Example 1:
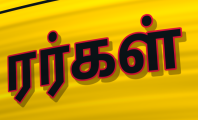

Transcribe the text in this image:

ரர்கள்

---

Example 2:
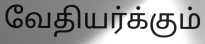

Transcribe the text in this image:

வேதியர்க்கும்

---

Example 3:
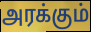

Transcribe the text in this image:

அரக்கும்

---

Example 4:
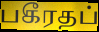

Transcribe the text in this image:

பகீரதப்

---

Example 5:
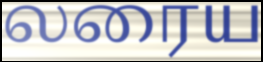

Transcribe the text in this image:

லரைய